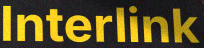
Interlink